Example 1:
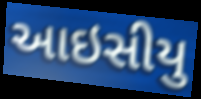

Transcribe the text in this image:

આઇસીયુ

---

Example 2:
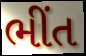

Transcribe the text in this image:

ભીંત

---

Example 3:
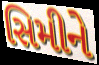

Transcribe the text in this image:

સિમીને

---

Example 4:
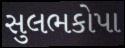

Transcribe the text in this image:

સુલભકોપા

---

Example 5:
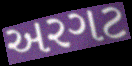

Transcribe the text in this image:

અરગટ